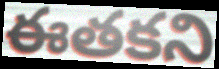
ఈతకని